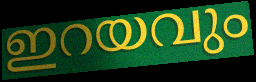
ഇറയവും